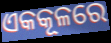
ଏକକୂଳରେ